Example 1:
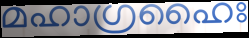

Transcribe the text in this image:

മഹാഗ്രഹൈഃ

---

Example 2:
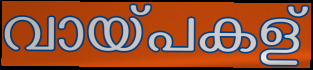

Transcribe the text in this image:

വായ്പകള്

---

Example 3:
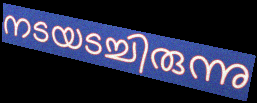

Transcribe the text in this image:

നടയടച്ചിരുന്നു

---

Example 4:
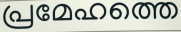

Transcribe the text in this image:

പ്രമേഹത്തെ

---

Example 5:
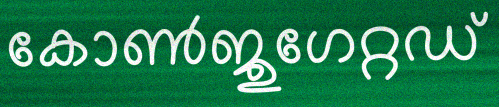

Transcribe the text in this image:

കോൺജുഗേറ്റഡ്